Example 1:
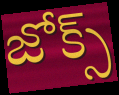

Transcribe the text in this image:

జోక్స్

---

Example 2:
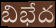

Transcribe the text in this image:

బిభేద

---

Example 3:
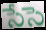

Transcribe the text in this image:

సేసె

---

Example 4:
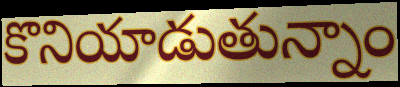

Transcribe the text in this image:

కొనియాడుతున్నాం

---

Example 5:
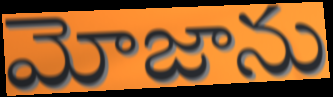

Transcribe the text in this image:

మోజాను